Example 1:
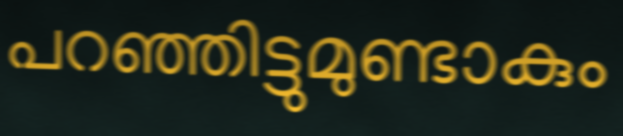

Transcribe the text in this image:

പറഞ്ഞിട്ടുമുണ്ടാകും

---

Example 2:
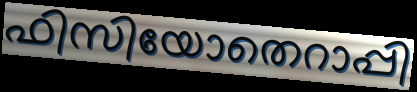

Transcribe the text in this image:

ഫിസിയോതെറാപ്പി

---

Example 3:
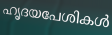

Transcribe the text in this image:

ഹൃദയപേശികൾ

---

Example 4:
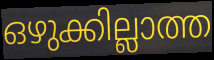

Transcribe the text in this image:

ഒഴുക്കില്ലാത്ത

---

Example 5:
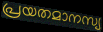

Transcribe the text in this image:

പ്രയതമാനസ്യ